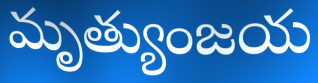
మృత్యుంజయ